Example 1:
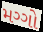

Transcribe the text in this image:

મગ્ગો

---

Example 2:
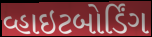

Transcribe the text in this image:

વ્હાઇટબોર્ડિંગ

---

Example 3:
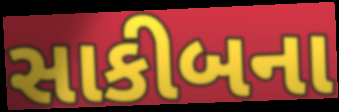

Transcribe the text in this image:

સાકીબના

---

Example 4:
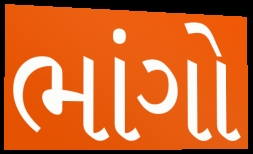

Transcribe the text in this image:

ભાંગો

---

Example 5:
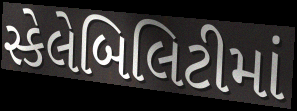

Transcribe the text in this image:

સ્કેલેબિલિટીમાં